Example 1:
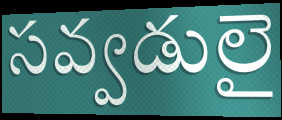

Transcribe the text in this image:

సవ్వడులై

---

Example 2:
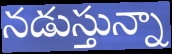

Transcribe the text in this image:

నడుస్తున్నా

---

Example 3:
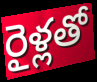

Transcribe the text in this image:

రైళ్లతో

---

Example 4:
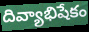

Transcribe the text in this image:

దివ్యాభిషేకం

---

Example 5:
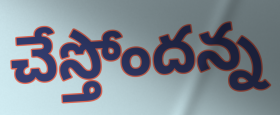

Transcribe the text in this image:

చేస్తోందన్న